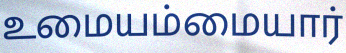
உமையம்மையார்